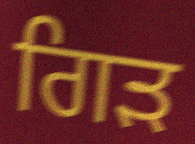
ਗਿੜ